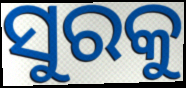
ସୁରକୁ